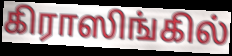
கிராஸிங்கில்